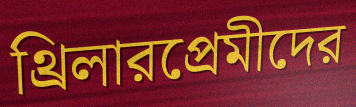
থ্রিলারপ্রেমীদের